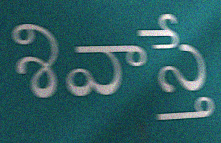
శివాస్తే